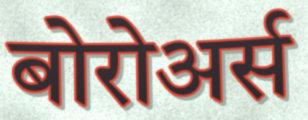
बोरोअर्स